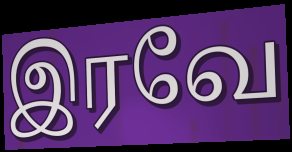
இரவே